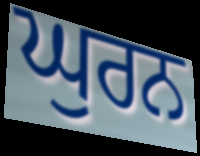
ਘੁਰਨ